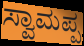
ಸ್ವಾಮಪ್ಪ